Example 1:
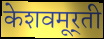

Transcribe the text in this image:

केशवमूर्ती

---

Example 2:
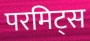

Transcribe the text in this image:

परमिट्स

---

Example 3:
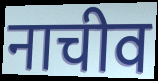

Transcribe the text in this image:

नाचीव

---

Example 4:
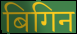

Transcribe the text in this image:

बिगिन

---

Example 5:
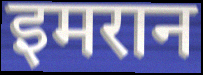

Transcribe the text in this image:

इमरान